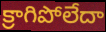
క్రాగిపోలేదా